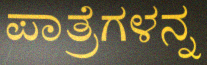
ಪಾತ್ರೆಗಳನ್ನ